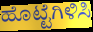
ಹೊಟ್ಟೆಗಿಳಿಸಿ